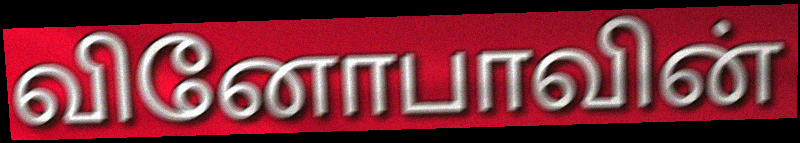
வினோபாவின்